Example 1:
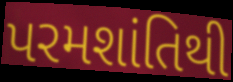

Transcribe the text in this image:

પરમશાંતિથી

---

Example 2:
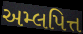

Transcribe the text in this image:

અમ્લપિત્ત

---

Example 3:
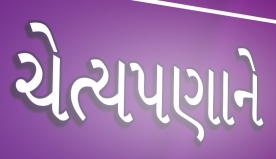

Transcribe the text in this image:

ચેત્યપણાને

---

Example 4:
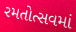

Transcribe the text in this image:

રમતોત્સવમાં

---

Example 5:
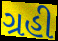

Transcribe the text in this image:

ગ્રહી